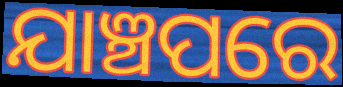
ଯାଞ୍ଚପରେ